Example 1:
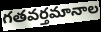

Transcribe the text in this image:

గతవర్తమానాల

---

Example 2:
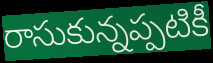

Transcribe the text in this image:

రాసుకున్నప్పటికీ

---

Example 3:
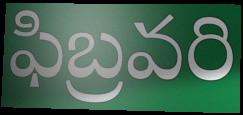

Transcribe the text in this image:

ఫిబ్రవరి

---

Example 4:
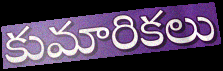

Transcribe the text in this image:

కుమారికలు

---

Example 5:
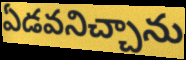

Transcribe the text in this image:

ఏడవనిచ్చాను